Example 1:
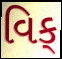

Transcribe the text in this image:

વિક્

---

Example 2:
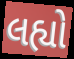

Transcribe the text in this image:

લહ્યો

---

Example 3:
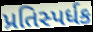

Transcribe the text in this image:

પ્રતિસ્પર્ધક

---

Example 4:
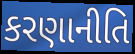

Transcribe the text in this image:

કરણાનીતિ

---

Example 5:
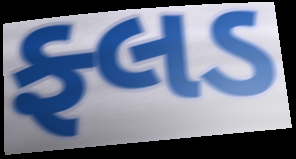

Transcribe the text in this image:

ફ્લડ